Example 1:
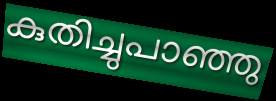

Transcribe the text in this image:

കുതിച്ചുപാഞ്ഞു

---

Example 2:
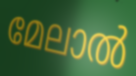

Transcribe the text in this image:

മേലാൽ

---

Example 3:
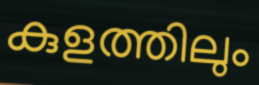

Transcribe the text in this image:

കുളത്തിലും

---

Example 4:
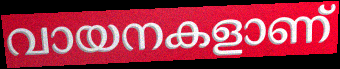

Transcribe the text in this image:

വായനകളാണ്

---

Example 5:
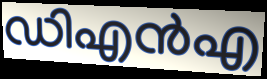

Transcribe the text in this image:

ഡിഎൻഎ